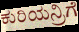
ಕುರಿಯನ್ರಿಗೆ